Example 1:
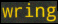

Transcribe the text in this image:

wring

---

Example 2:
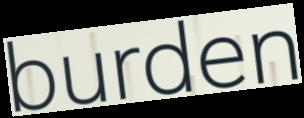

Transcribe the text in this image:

burden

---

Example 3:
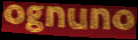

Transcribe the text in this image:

ognuno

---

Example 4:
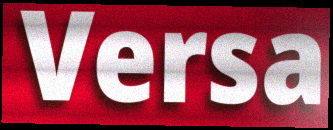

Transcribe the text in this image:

Versa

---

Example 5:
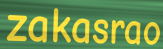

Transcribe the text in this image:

zakasrao